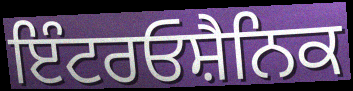
ਇੰਟਰਓਸ਼ੈਨਿਕ